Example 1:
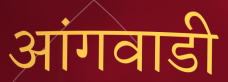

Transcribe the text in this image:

आंगवाडी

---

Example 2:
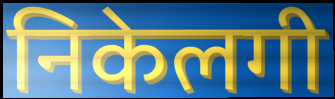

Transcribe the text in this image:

निकेलगी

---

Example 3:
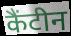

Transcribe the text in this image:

कैंटीन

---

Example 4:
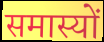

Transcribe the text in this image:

समास्यों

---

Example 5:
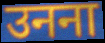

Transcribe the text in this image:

उनना